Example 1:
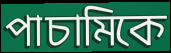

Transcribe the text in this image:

পাচামিকে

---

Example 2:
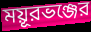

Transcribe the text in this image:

ময়ূরভঞ্জের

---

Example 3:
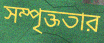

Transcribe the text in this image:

সম্পৃক্ততার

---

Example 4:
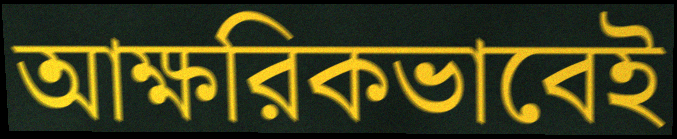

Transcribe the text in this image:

আক্ষরিকভাবেই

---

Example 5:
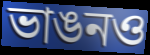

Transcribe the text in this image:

ভাঙনও